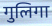
गुलिगा